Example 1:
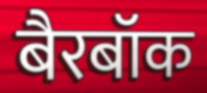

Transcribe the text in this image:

बैरबॉक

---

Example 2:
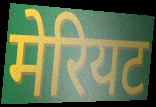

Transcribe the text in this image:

मेरियट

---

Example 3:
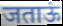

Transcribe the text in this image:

जताऊं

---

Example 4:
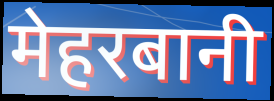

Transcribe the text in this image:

मेहरबानी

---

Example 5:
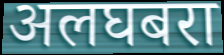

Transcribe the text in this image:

अलघबरा